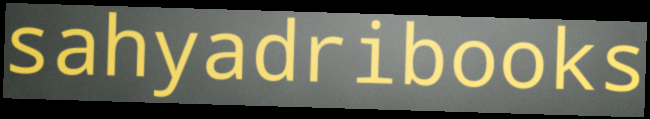
sahyadribooks